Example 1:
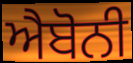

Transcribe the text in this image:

ਐਬੋਨੀ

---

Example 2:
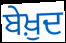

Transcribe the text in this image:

ਬੇਖ਼ੁਦ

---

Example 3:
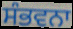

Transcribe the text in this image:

ਸੰਭਵਨਾ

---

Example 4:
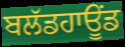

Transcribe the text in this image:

ਬਲੱਡਹਾਊਂਡ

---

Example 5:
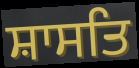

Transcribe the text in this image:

ਸ਼ਾਸਤਿ